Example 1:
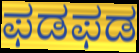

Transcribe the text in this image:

ಫಡಫಡ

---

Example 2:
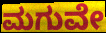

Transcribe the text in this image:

ಮಗುವೇ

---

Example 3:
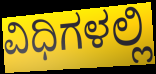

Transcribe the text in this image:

ವಿಧಿಗಳಲ್ಲಿ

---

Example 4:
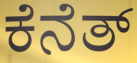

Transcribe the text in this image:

ಕೆನೆತ್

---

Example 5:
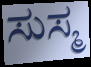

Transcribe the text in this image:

ಸುಸ್ಮ